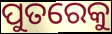
ପୁତରେକୁ